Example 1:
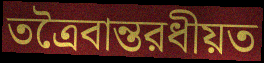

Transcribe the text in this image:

তত্রৈবান্তরধীয়ত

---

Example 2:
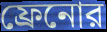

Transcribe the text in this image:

ফ্রেনোর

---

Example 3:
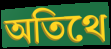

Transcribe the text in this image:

অতিথে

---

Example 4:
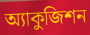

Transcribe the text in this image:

অ্যাকুজিশন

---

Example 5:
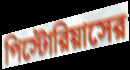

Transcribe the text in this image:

পিস্টোরিয়াসের